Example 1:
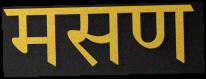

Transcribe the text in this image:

मसण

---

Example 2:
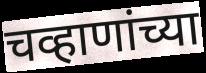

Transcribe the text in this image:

चव्हाणांच्या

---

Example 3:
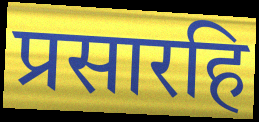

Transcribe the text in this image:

प्रसारहि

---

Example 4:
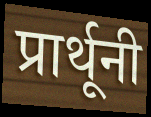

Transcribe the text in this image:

प्रार्थूनी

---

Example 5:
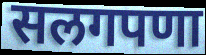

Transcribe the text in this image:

सलगपणा